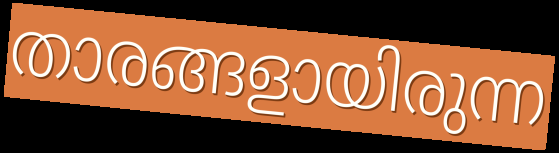
താരങ്ങളായിരുന്ന